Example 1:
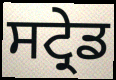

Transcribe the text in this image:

ਸਟ੍ਰੇਡ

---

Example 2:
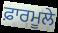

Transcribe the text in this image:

ਫ਼ਾਰਮੂਲੇ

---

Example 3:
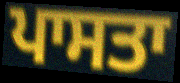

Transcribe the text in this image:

ਪਾਸਤਾ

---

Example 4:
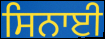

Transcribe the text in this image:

ਸਿਨਾਈ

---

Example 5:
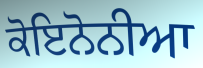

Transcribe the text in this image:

ਕੋਇਨੋਨੀਆ